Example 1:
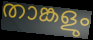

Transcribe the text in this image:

താങ്കളും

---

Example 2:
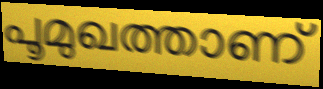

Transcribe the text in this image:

പൂമുഖത്താണ്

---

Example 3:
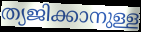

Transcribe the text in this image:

ത്യജിക്കാനുള്ള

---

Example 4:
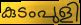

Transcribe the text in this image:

കുടംപുളി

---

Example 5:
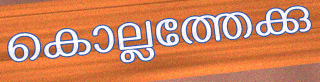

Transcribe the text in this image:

കൊല്ലത്തേക്കു